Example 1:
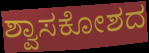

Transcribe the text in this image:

ಶ್ವಾಸಕೋಶದ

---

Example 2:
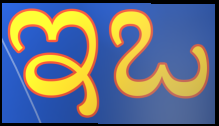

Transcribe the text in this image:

ಇಒ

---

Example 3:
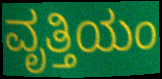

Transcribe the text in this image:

ವೃತ್ತಿಯಂ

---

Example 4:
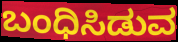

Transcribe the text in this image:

ಬಂಧಿಸಿಡುವ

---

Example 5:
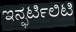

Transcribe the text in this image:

ಇನ್ಫರ್ಟಿಲಿಟಿ